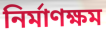
নির্মাণক্ষম